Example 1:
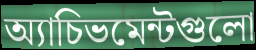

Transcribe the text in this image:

অ্যাচিভমেন্টগুলো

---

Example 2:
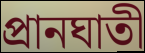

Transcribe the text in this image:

প্রানঘাতী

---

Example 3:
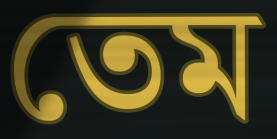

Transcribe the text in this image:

তেম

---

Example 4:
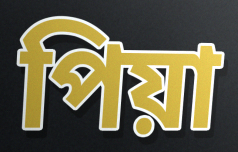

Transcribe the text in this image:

পিয়া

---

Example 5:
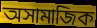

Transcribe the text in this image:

অসামাজিক